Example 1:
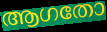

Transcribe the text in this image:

ആഗതോ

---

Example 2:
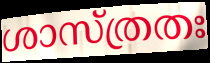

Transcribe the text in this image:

ശാസ്ത്രതഃ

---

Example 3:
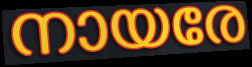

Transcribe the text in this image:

നായരേ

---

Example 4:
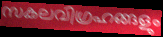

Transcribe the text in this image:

സകലവിഗ്രഹങ്ങളും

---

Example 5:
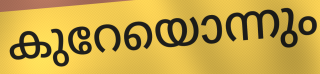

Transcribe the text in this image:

കുറേയൊന്നും